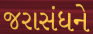
જરાસંધને